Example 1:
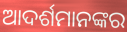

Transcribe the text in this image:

ଆଦର୍ଶମାନଙ୍କର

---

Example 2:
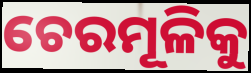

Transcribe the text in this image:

ଚେରମୂଳିକୁ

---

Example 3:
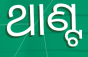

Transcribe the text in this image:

ଥାଣ୍ଟ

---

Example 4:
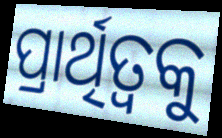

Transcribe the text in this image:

ପ୍ରାର୍ଥିତ୍ୱକୁ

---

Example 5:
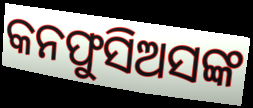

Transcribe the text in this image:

କନଫୁସିଅସଙ୍କ